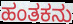
ಹಂತಕನು